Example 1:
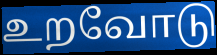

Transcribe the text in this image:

உறவோடு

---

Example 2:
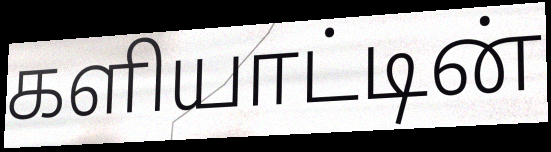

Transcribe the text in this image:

களியாட்டின்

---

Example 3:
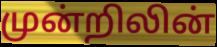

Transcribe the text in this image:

முன்றிலின்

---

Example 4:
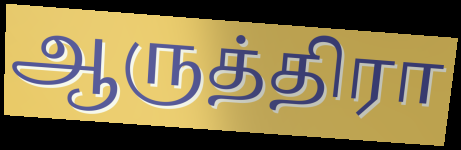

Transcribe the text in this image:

ஆருத்திரா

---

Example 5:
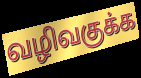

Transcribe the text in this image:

வழிவகுக்க